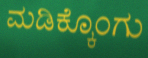
ಮಡಿಕ್ಕೊಂಗು